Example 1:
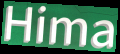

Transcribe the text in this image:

Hima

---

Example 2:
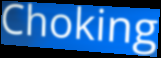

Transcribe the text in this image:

Choking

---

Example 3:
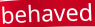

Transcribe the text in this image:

behaved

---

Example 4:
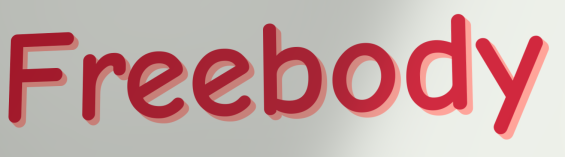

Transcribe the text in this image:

Freebody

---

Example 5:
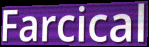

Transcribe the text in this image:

Farcical